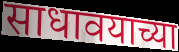
साधावयाच्या